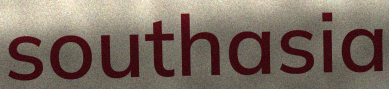
southasia